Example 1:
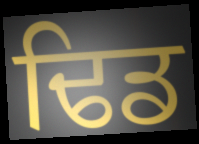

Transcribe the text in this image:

ਢਿਡ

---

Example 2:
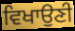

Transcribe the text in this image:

ਵਿਖਾਉਣੀ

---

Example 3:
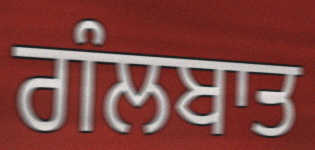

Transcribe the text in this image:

ਗੰਲਬਾਤ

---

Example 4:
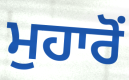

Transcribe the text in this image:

ਮੁਹਾਰੋਂ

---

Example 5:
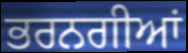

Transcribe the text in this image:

ਭਰਨਗੀਆਂ